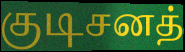
குடிசனத்